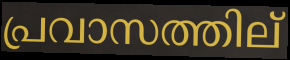
പ്രവാസത്തില്